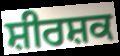
ਸ਼ੀਰਸ਼ਕ